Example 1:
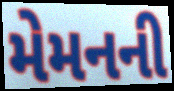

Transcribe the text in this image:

મેમનની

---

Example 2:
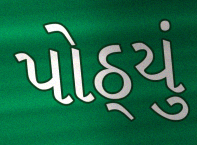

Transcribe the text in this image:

પોઠ્યું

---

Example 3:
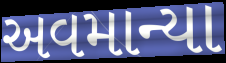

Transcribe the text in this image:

અવમાન્યા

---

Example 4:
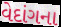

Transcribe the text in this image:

વેદાંગના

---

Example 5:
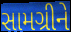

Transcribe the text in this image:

સામગ્રીને